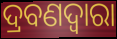
ଦ୍ରବଣଦ୍ବାରା